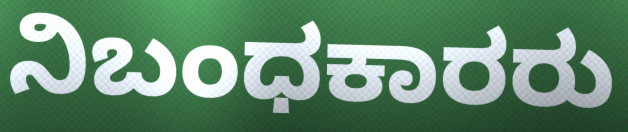
ನಿಬಂಧಕಾರರು